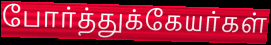
போர்த்துக்கேயர்கள்